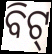
ବିଟ୍